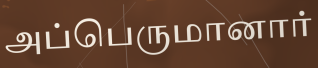
அப்பெருமானார்